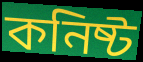
কনিষ্ট